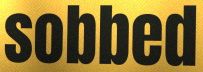
sobbed